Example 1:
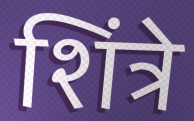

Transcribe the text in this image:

शिंत्रे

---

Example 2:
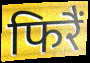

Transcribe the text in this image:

फिरैं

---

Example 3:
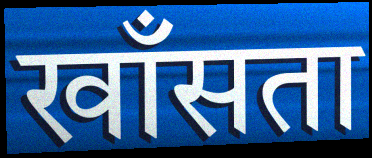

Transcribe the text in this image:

खाँसता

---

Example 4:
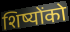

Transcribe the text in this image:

शिष्योंको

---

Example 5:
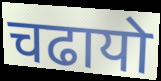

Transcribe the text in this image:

चढायो